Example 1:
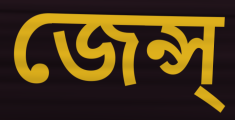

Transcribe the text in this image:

জেন্স্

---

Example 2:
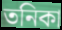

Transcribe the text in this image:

তনিকা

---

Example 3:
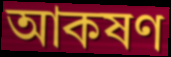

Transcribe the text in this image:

আকষণ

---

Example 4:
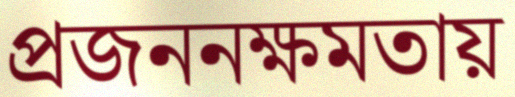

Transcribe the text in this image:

প্রজননক্ষমতায়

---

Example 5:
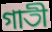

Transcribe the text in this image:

গাতী